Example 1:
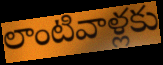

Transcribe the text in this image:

లాంటివాళ్లకు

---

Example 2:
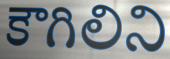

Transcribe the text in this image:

కౌగిలిని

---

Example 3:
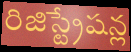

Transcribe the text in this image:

రిజిస్ట్రేషన్ల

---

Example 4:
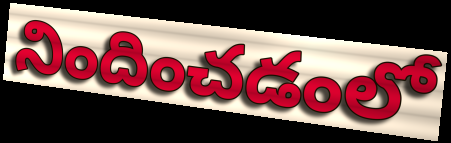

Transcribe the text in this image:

నిందించడంలో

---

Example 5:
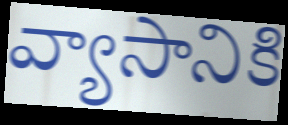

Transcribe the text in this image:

వ్యాసానికి